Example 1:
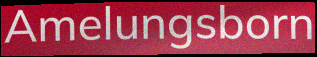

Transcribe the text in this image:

Amelungsborn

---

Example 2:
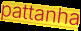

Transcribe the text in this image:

pattanha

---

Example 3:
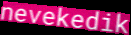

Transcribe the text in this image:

nevekedik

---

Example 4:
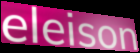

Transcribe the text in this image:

eleison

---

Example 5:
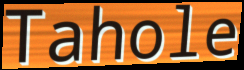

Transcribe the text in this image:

Tahole